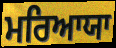
ਮਰਿਆਯਾ